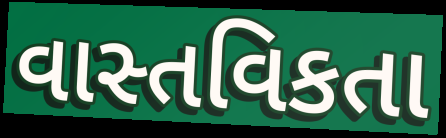
વાસ્તવિકતા